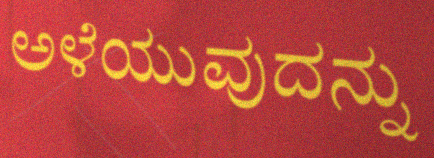
ಅಳೆಯುವುದನ್ನು